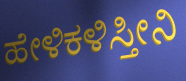
ಹೇಳಿಕಳಿಸ್ತೀನಿ